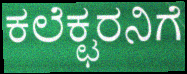
ಕಲೆಕ್ಟರನಿಗೆ